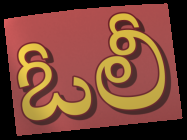
ఓలీ